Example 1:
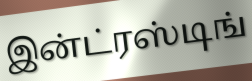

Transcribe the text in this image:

இன்ட்ரஸ்டிங்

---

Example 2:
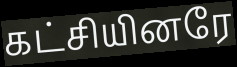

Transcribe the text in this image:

கட்சியினரே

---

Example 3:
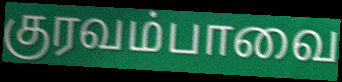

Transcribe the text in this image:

குரவம்பாவை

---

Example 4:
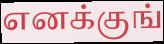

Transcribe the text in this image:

எனக்குங்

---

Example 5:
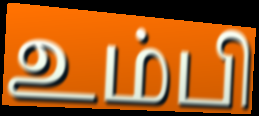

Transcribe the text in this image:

உம்பி